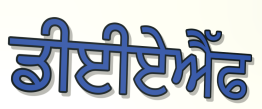
ਡੀਈਏਐੱਫ